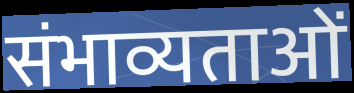
संभाव्यताओं